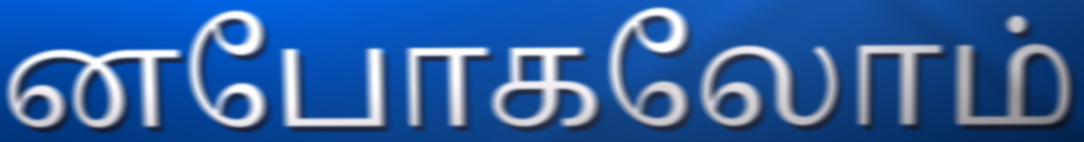
னபோகலோம்